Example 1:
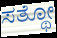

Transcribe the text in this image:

ಸತ್ಥೋ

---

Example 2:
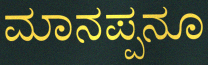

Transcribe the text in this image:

ಮಾನಪ್ಪನೂ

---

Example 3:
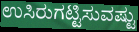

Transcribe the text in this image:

ಉಸಿರುಗಟ್ಟಿಸುವಷ್ಟು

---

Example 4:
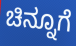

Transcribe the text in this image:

ಚಿನ್ನೂಗೆ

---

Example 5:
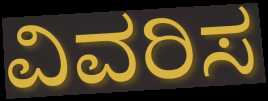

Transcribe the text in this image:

ವಿವರಿಸ